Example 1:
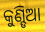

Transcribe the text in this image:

କୁଣ୍ଡିଆ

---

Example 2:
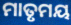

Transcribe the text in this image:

ମାତୃମୟ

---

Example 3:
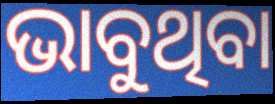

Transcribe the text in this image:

ଭାବୁଥିବା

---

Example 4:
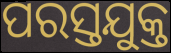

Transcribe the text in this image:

ପରସ୍ତଯୁକ୍ତ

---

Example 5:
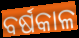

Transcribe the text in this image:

ବର୍ଷକାଳ